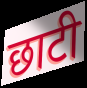
छाटी